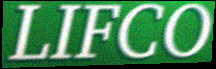
LIFCO